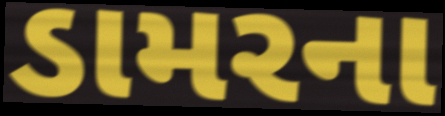
ડામરના